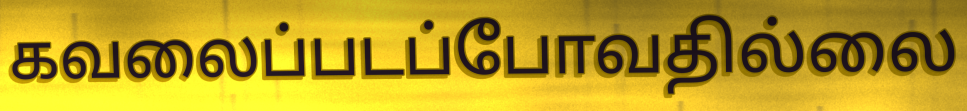
கவலைப்படப்போவதில்லை